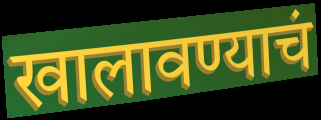
खालावण्याचं